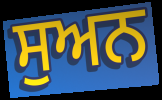
ਸੁਅਨ